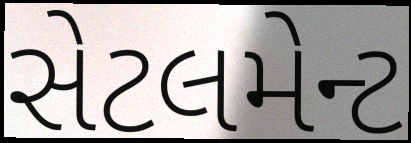
સેટલમેન્ટ